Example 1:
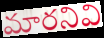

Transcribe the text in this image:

మారనివి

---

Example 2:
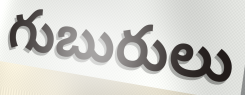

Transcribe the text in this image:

గుబురులు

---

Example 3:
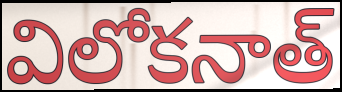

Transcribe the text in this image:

విలోకనాత్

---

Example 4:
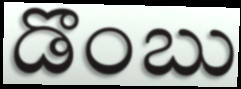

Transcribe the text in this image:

డొంబు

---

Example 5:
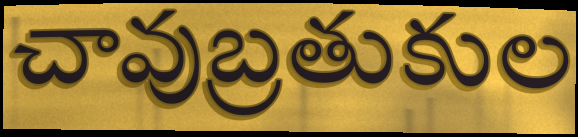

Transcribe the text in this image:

చావుబ్రతుకుల